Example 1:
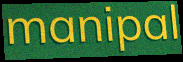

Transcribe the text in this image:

manipal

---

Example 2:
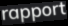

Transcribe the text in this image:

rapport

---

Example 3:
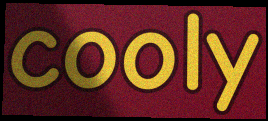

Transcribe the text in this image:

cooly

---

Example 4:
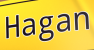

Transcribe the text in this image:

Hagan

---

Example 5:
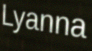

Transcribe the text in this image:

Lyanna